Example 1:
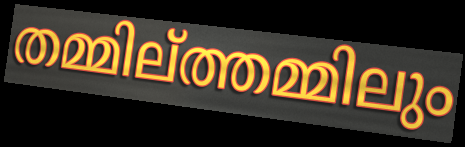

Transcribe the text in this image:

തമ്മില്ത്തമ്മിലും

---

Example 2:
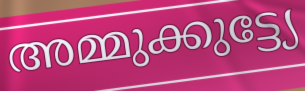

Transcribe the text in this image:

അമ്മുക്കുട്ട്യേ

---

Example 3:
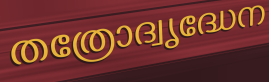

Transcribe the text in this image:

തത്രോദ്വൃദ്ധേന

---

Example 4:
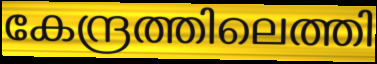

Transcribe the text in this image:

കേന്ദ്രത്തിലെത്തി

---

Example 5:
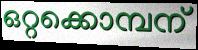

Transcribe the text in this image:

ഒറ്റക്കൊമ്പന്